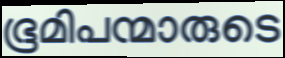
ഭൂമിപന്മാരുടെ